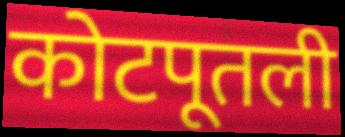
कोटपूतली